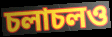
চলাচলও